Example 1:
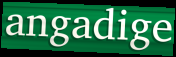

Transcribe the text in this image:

angadige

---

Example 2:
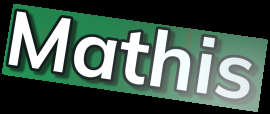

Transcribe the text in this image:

Mathis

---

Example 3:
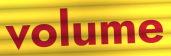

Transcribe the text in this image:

volume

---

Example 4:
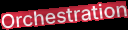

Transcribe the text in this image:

Orchestration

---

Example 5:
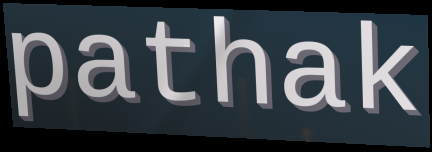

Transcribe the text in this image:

pathak